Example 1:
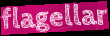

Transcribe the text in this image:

flagellar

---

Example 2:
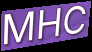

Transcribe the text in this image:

MHC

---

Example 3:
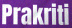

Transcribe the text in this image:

Prakriti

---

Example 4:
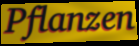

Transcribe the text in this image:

Pflanzen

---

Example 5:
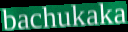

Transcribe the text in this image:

bachukaka